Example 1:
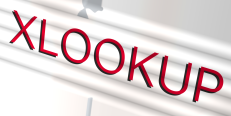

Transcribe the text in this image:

XLOOKUP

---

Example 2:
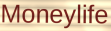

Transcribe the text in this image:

Moneylife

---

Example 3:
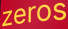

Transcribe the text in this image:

zeros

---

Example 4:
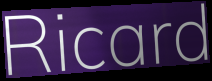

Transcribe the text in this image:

Ricard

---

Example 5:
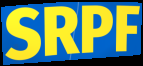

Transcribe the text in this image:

SRPF